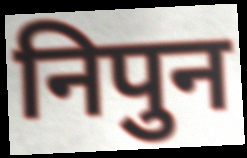
निपुन